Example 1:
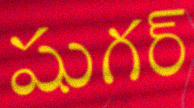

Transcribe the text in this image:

షుగర్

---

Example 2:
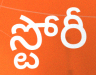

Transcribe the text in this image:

స్టోరీ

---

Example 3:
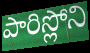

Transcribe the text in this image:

పారిస్లోని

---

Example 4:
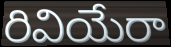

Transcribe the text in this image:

రివియేరా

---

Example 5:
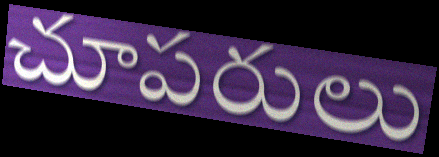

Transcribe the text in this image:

చూపరులు